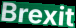
Brexit